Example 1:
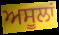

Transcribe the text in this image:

ਅਸੂਲਾਂ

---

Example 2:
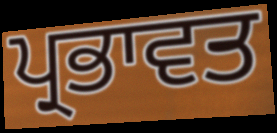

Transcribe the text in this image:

ਪ੍ਰਭਾਵਤ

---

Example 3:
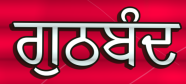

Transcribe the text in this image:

ਗੁਠਬੰਦ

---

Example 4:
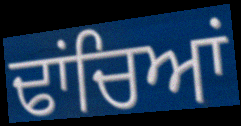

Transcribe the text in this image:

ਢਾਂਚਿਆਂ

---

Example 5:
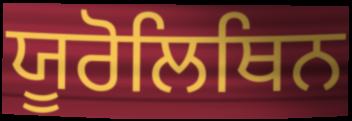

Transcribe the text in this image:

ਯੂਰੋਲਿਥਿਨ